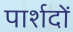
पार्शदों